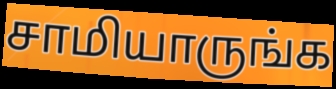
சாமியாருங்க